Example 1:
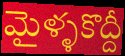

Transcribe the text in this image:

మైళ్ళకొద్దీ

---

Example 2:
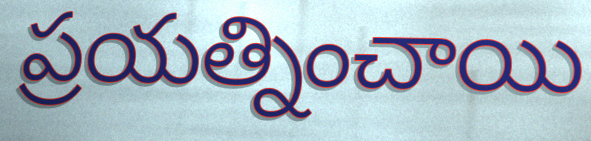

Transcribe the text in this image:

ప్రయత్నించాయి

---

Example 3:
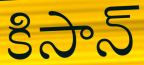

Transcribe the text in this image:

కిసాన్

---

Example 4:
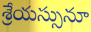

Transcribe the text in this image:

శ్రేయస్సునూ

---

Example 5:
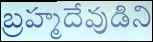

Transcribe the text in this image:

బ్రహ్మదేవుడిని